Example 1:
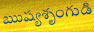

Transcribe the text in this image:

ఋష్యశృంగుడి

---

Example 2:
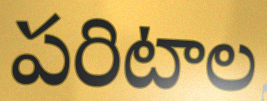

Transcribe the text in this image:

పరిటాల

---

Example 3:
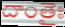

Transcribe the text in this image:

దాంతైః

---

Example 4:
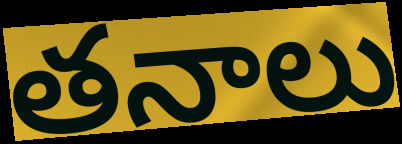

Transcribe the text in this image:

తనాలు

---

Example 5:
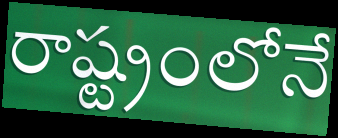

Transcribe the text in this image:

రాష్ట్రంలోనే